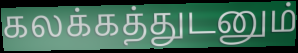
கலக்கத்துடனும்